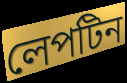
লেপটিন